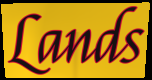
Lands